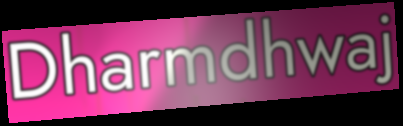
Dharmdhwaj